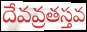
దేవవ్రతస్తవ